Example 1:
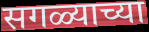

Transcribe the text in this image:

सगळ्याच्या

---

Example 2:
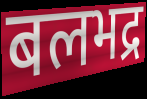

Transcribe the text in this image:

बलभद्र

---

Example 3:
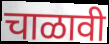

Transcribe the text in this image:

चाळावी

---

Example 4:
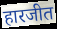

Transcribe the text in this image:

हारजीत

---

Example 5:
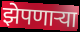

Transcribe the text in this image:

झेपणार्‍या